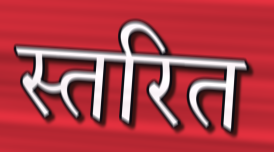
स्तरित